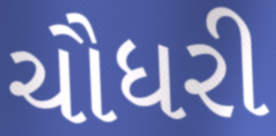
ચૌધરી